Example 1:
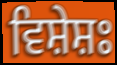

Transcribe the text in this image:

ਵਿਸ਼ੇਸ਼ਃ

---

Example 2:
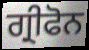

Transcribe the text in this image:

ਗ੍ਰੀਫੋਨ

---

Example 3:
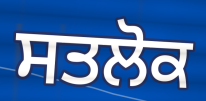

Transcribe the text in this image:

ਸਤਲੋਕ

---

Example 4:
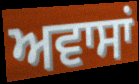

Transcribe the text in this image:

ਅਵਾਸਾਂ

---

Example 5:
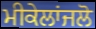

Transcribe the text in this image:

ਮੀਕੇਲਾਂਜਲੋ